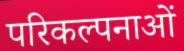
परिकल्पनाओं